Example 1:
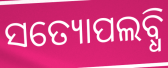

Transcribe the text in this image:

ସତ୍ୟୋପଲବ୍ଧି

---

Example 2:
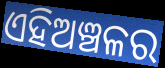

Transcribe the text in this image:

ଏହିଅଞ୍ଚଳର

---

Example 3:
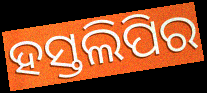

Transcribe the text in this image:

ହସ୍ତଲିପିର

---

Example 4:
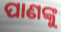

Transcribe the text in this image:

ପାଣଙ୍କୁ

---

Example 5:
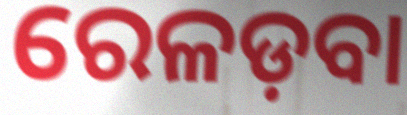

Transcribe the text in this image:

ରେଳଡ଼ବା